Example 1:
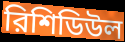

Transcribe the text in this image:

রিশিডিউল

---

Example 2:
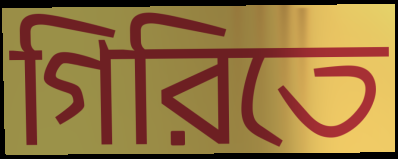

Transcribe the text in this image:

গিরিতে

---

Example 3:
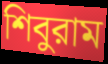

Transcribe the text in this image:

শিবুরাম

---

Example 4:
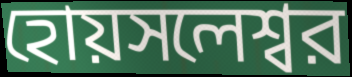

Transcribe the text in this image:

হোয়সলেশ্বর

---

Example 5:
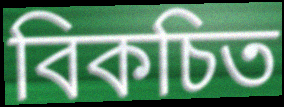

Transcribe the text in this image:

বিকচিত